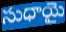
సుధాయై